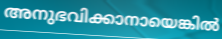
അനുഭവിക്കാനായെങ്കിൽ